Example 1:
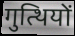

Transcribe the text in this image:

गुत्थियों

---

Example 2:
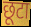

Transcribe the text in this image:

छूटा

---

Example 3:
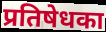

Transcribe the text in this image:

प्रतिषेधका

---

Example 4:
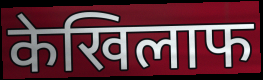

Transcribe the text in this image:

केखिलाफ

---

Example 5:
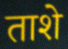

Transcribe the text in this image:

ताशे